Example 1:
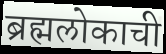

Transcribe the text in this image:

ब्रह्मलोकाची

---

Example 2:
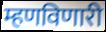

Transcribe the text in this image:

म्हणविणारी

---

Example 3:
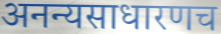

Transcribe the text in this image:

अनन्यसाधारणच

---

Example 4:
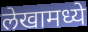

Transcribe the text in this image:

लेखामध्ये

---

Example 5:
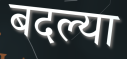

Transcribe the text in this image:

बदल्या